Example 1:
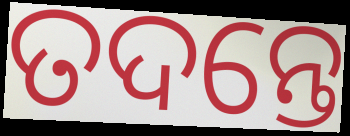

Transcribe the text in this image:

ତଦନ୍ତେ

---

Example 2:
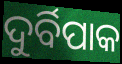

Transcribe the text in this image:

ଦୁର୍ବିପାକ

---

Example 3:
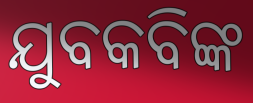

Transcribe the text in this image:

ଯୁବକବିଙ୍କ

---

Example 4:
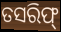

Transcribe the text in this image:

ତସରିଫ୍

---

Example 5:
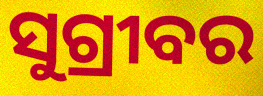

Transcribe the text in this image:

ସୁଗ୍ରୀବର